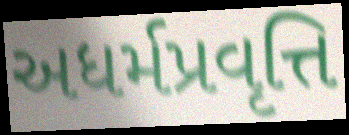
અધર્મપ્રવૃત્તિ